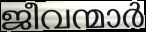
ജീവന്മാർ